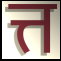
त्त